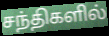
சந்திகளில்